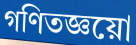
গণিতজ্ঞয়ো